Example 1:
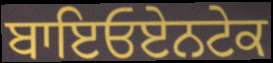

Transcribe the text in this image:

ਬਾਇਓਏਨਟੇਕ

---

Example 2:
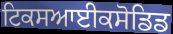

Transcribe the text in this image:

ਟਿਕਸਆਈਕਸੋਡਿਡ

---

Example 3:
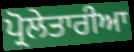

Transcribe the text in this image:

ਪ੍ਰੋਲੇਤਾਰੀਆ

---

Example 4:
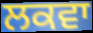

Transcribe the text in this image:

ਲਕਵਾ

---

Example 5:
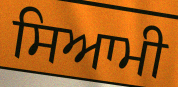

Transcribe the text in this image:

ਸਿਆਮੀ